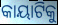
କାୟାଟିକୁ